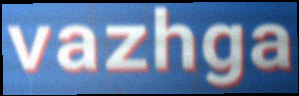
vazhga